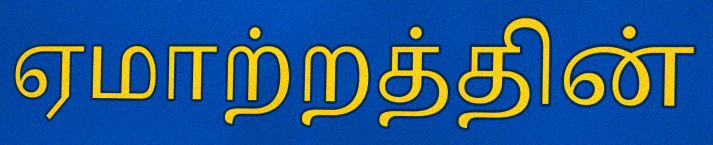
ஏமாற்றத்தின்